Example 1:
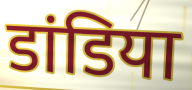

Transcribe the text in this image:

डांडिया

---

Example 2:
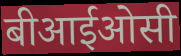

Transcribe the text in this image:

बीआईओसी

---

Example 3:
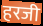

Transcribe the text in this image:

हरजी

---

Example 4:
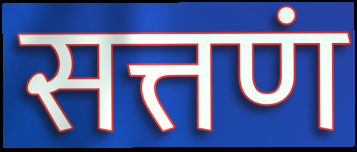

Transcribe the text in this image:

सत्तणं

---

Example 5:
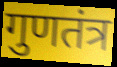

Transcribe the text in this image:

गुणतंत्र